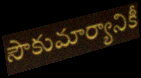
సౌకుమార్యానికీ